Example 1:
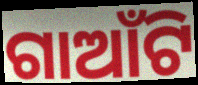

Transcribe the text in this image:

ଗାଆଁଟି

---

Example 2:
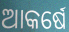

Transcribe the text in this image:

ଆକର୍ଷେ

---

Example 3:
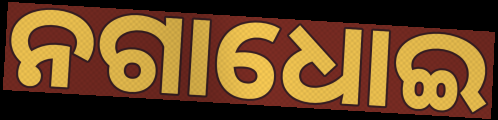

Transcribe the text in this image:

ନଗାଧୋଇ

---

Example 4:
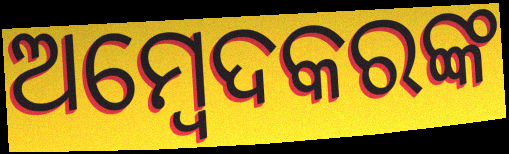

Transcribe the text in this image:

ଅମ୍ବେଦକରଙ୍କ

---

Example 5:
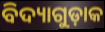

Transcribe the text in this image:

ବିଦ୍ୟାଗୁଡ଼ାକ